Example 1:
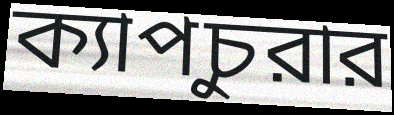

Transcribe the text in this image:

ক্যাপচুরার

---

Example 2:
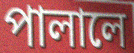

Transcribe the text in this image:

পালালে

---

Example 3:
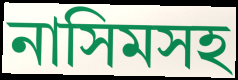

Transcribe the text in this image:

নাসিমসহ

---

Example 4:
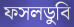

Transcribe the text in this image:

ফসলডুবি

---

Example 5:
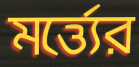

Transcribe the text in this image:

মর্ত্ত্যের